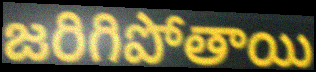
జరిగిపోతాయి